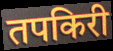
तपकिरी